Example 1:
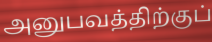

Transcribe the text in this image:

அனுபவத்திற்குப்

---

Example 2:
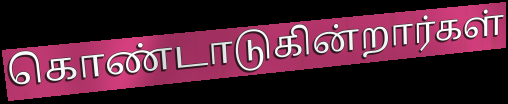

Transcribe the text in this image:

கொண்டாடுகின்றார்கள்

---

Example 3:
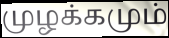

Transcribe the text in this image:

முழக்கமும்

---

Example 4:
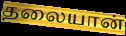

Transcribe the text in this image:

தலையான்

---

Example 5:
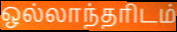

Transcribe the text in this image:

ஒல்லாந்தரிடம்